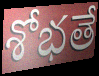
శోభతే